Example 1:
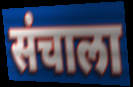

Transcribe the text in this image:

संचाला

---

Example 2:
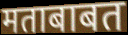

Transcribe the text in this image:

मताबाबत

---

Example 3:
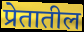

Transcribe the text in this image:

प्रेतातील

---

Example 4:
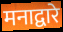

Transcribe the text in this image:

मनाद्वारे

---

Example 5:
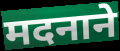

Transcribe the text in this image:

मदनाने